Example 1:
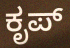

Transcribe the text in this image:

ಕೃಪ್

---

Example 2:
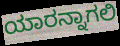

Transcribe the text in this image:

ಯಾರನ್ನಾಗಲಿ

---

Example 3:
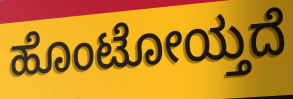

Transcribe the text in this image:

ಹೊಂಟೋಯ್ತದೆ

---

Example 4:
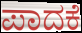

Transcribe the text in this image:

ಪಾದಕೆ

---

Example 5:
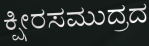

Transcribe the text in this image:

ಕ್ಷೀರಸಮುದ್ರದ